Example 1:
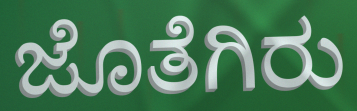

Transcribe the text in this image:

ಜೊತೆಗಿರು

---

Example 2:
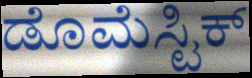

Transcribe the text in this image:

ಡೊಮೆಸ್ಟಿಕ್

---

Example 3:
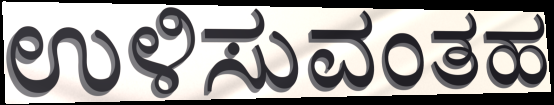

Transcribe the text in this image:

ಉಳಿಸುವಂತಹ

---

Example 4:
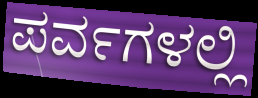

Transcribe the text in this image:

ಪರ್ವಗಳಲ್ಲಿ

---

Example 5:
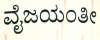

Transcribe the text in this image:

ವೈಜಯಂತೀ